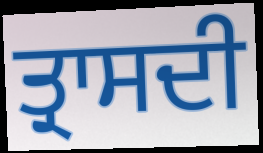
ਤ੍ਰਾਸਦੀ